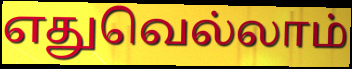
எதுவெல்லாம்